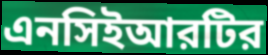
এনসিইআরটির